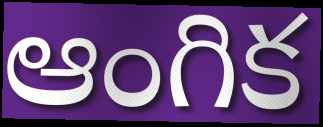
ఆంగిక